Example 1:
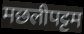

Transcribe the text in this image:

मछलीपट्टम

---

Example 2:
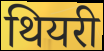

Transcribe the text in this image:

थियरी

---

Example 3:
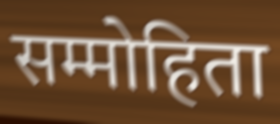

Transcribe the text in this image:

सम्मोहिता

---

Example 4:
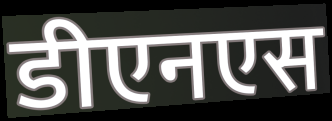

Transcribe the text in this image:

डीएनएस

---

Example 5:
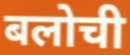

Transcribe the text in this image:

बलोची